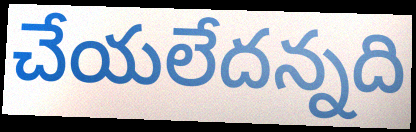
చేయలేదన్నది